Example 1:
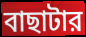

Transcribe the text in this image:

বাছাটার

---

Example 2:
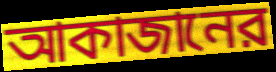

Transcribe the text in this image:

আকাজানের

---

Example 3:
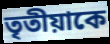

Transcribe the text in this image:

তৃতীয়াকে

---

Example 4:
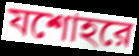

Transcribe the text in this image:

যশোহরে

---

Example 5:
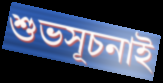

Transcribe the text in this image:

শুভসূচনাই